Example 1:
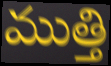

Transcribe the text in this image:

ముత్తి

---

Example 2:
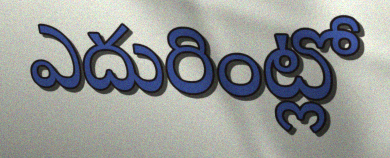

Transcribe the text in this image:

ఎదురింట్లో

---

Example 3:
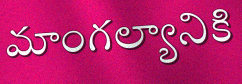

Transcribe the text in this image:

మాంగల్యానికి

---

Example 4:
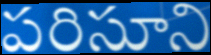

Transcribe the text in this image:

పరిసూని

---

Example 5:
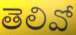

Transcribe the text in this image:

తెలివో